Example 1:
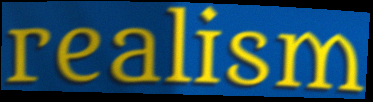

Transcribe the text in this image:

realism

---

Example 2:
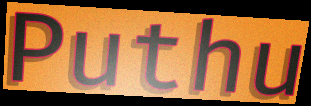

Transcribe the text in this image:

Puthu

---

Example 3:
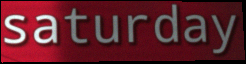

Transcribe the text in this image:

saturday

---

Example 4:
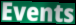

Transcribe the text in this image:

Events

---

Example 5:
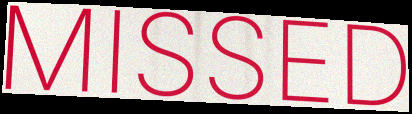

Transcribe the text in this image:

MISSED